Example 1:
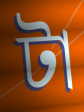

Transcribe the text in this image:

টা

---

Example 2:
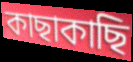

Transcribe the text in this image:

কাছাকাছি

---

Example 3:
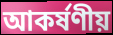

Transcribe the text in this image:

আকর্ষণীয়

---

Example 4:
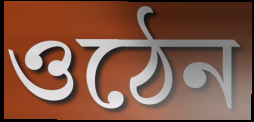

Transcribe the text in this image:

ওঠেন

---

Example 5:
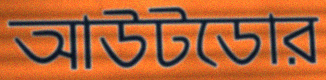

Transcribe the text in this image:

আউটডোর